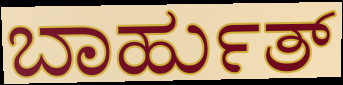
ಬಾರ್ಹುತ್